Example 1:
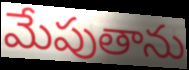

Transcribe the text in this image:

మేపుతాను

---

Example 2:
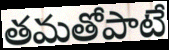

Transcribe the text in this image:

తమతోపాటే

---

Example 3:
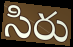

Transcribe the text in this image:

సిరు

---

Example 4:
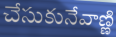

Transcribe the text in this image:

చేసుకునేవాణ్ణి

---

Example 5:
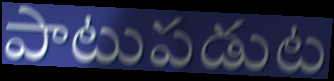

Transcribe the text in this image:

పాటుపడుట